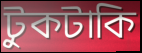
টুকটাকি